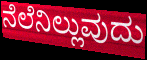
ನೆಲೆನಿಲ್ಲುವುದು